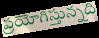
ప్రయోగిస్తున్నది